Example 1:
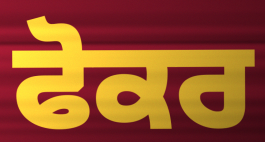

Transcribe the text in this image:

ਫੋਕਰ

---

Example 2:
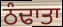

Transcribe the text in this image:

ਠੰਢਾਤਾ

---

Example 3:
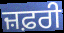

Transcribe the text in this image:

ਜ਼ਫ਼ਰੀ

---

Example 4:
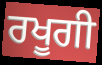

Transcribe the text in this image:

ਰਖੂਗੀ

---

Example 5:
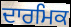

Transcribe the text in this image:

ਦਾਰਮਿਕ